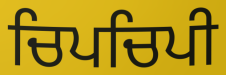
ਚਿਪਚਿਪੀ